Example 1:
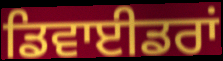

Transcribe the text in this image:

ਡਿਵਾਈਡਰਾਂ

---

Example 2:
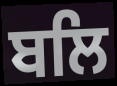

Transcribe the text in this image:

ਬਲਿ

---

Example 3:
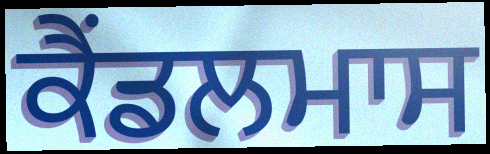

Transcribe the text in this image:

ਕੈਂਡਲਮਾਸ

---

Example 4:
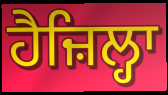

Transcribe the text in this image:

ਹੈਜ਼ਿਲ੍ਹਾ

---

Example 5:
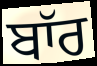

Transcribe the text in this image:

ਬਾੱਰ